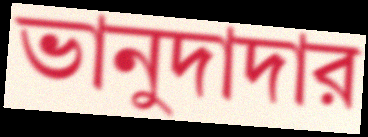
ভানুদাদার